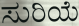
ಸುರಿಯೆ